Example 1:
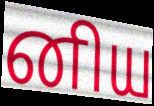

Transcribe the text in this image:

னிய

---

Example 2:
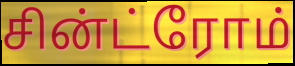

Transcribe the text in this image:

சின்ட்ரோம்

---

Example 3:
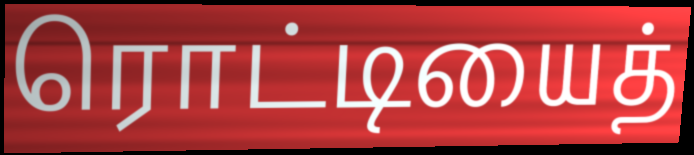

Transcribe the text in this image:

ரொட்டியைத்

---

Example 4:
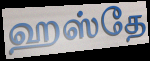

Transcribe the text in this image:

ஹஸ்தே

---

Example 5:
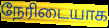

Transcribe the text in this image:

நேரிடையாக